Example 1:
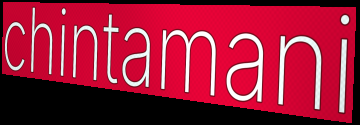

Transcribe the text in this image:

chintamani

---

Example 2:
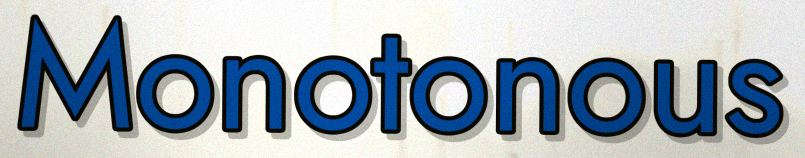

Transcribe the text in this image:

Monotonous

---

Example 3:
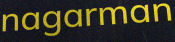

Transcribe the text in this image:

nagarman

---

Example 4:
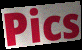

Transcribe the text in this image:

Pics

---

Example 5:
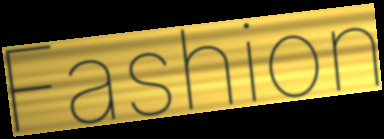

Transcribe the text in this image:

Fashion